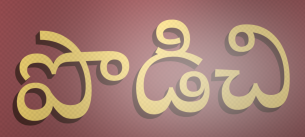
పొడిచి